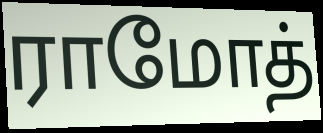
ராமோத்